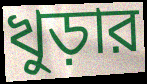
খুড়ার